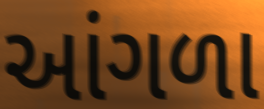
આંગળા